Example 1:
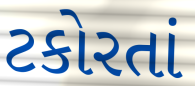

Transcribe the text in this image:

ટકોરતાં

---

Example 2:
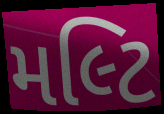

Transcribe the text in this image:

મલ્ટિ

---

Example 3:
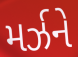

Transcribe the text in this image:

મર્ઝને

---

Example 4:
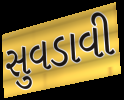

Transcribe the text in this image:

સુવડાવી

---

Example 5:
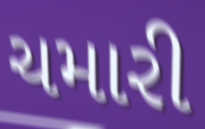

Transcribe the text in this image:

ચમારી